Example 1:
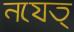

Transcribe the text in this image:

নযেত্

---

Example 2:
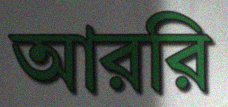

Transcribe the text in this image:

আররি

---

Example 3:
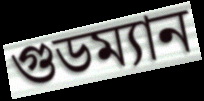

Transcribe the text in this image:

গুডম্যান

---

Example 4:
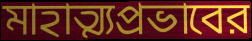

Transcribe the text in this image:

মাহাত্ম্যপ্রভাবের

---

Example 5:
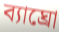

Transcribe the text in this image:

ব্যাঘ্রো